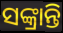
ସଙ୍କ୍ରାନ୍ତି